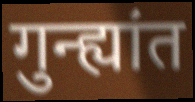
गुन्ह्यांत